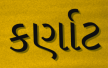
કર્ણાટ